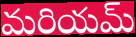
మరియమ్